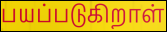
பயப்படுகிறாள்